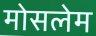
मोसलेम